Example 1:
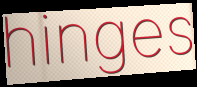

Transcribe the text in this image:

hinges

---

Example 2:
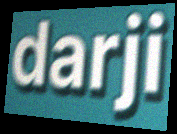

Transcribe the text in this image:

darji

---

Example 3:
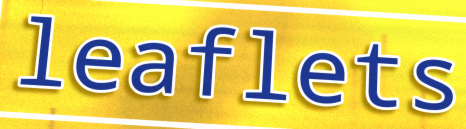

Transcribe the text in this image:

leaflets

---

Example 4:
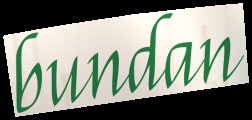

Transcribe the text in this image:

bundan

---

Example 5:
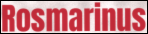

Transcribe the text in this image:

Rosmarinus